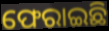
ଫେରାଇଛି